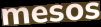
mesos